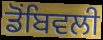
ਡੋਂਬਿਵਲੀ